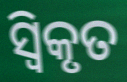
ସ୍ଵିକୃତ